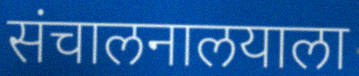
संचालनालयाला